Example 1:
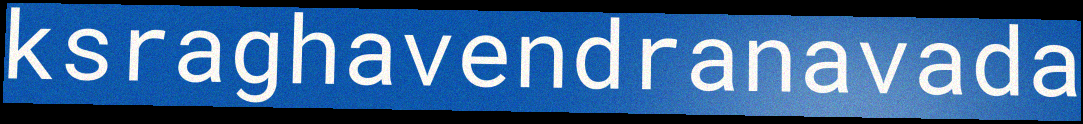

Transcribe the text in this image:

ksraghavendranavada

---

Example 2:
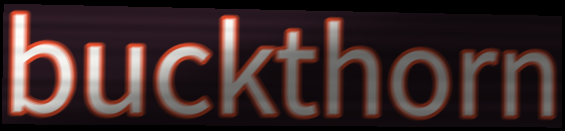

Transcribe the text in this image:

buckthorn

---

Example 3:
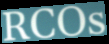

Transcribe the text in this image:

RCOs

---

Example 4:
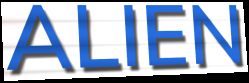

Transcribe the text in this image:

ALIEN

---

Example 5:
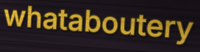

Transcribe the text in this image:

whataboutery